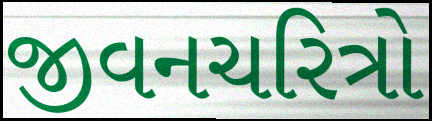
જીવનચરિત્રો